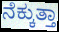
ನೆಕ್ಕುತ್ತಾ